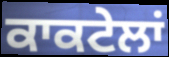
ਕਾਕਟੇਲਾਂ